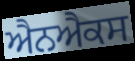
ਐਨਐਕਸ